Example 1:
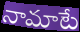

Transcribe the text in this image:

నామాటే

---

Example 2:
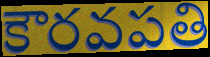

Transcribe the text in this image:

కౌరవపతి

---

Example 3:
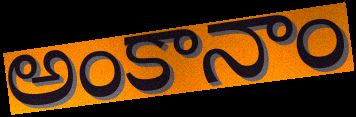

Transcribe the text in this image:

అంకానాం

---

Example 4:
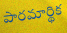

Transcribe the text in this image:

పారమార్థిక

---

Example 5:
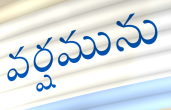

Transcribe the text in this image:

వర్షమును